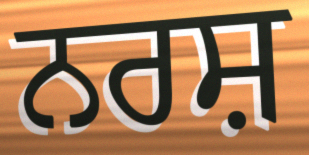
ਨਰਸ਼